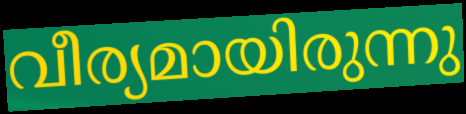
വീര്യമായിരുന്നു